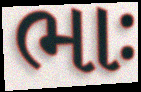
ભાઃ